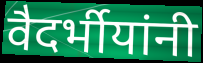
वैदर्भीयांनी